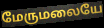
மேருமலையே